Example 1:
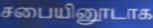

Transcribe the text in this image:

சபையினூடாக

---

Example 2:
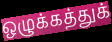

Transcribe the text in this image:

ஒழுக்கத்துக்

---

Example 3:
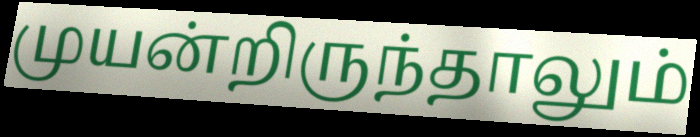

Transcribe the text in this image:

முயன்றிருந்தாலும்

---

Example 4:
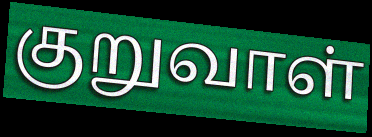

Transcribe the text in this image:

குறுவாள்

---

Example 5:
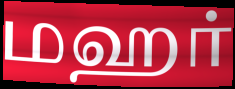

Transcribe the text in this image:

மஹர்